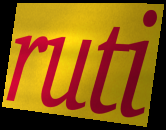
ruti